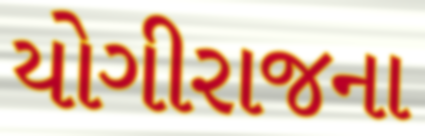
યોગીરાજના